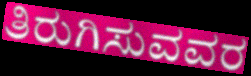
ತಿರುಗಿಸುವವರ